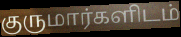
குருமார்களிடம்